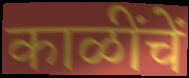
काळींचें